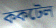
ককটেল